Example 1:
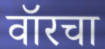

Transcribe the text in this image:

वॉरचा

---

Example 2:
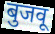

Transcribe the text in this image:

बुजवू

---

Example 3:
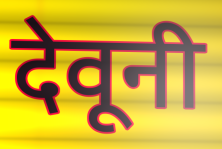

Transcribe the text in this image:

देवूनी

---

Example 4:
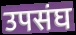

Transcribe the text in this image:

उपसंघ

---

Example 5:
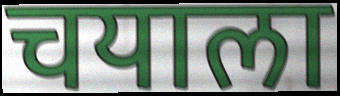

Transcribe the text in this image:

चयाला